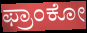
ಫ್ರಾಂಕೋ